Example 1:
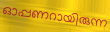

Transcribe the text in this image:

ഓപ്പണറായിരുന്ന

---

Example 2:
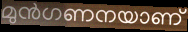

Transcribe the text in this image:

മുൻഗണനയാണ്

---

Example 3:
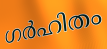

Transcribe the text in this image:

ഗർഹിതം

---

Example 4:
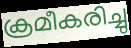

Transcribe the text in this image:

ക്രമീകരിച്ചു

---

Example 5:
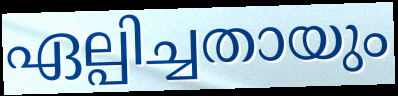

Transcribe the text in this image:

ഏല്പിച്ചതായും